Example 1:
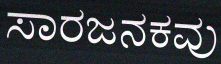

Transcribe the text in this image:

ಸಾರಜನಕವು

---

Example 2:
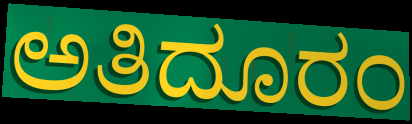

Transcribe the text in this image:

ಅತಿದೂರಂ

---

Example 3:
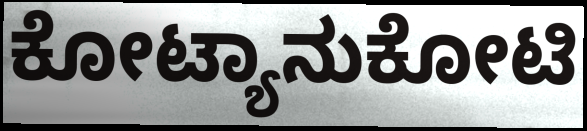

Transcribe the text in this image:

ಕೋಟ್ಯಾನುಕೋಟಿ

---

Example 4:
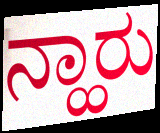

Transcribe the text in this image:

ನ್ಹಾರು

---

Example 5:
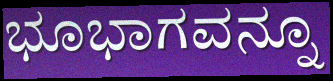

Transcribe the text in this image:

ಭೂಭಾಗವನ್ನೂ